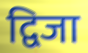
द्विजा